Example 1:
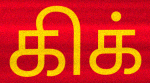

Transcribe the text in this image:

கிக்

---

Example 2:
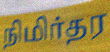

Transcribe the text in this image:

நிமிர்தர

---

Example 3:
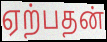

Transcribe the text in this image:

ஏற்பதன்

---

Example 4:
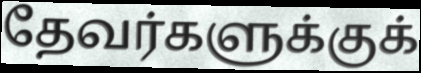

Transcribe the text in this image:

தேவர்களுக்குக்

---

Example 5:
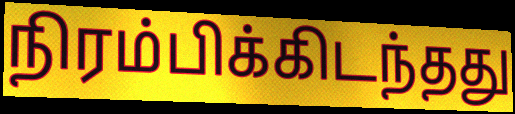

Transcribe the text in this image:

நிரம்பிக்கிடந்தது